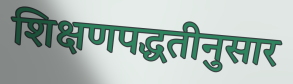
शिक्षणपद्धतीनुसार